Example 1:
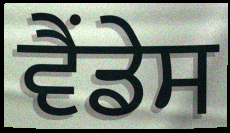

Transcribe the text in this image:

ਵੈਂਡੇਸ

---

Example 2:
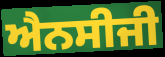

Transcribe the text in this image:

ਐਨਸੀਜੀ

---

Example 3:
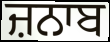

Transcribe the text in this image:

ਜ਼ਨਾਬ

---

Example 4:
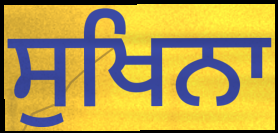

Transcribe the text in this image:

ਸੁਖਿਨਾ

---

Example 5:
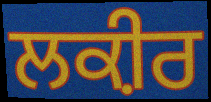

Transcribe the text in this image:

ਲਕ਼ੀਰ